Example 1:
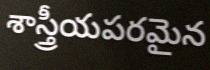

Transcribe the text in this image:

శాస్త్రీయపరమైన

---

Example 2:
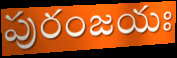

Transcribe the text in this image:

పురంజయః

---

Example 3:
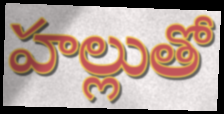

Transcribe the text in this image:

హల్లుతో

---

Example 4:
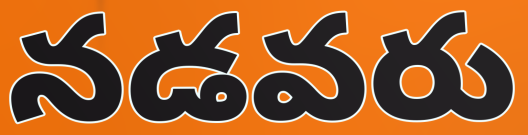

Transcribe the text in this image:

నడవరు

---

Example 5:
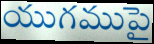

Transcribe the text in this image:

యుగముపై